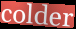
colder